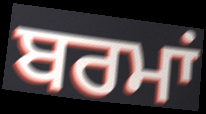
ਬਰਮਾਂ